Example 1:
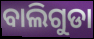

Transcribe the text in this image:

ବାଲିଗୁଡା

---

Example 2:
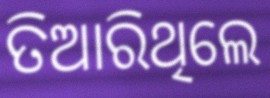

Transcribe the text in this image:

ତିଆରିଥିଲେ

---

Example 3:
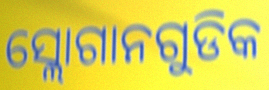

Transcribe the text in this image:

ସ୍ଲୋଗାନଗୁଡିକ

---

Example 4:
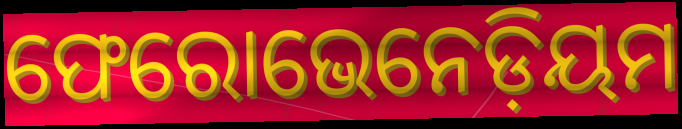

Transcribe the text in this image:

ଫେରୋଭେନେଡ଼ିୟମ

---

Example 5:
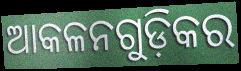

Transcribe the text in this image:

ଆକଳନଗୁଡ଼ିକର